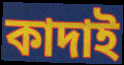
কাদাই